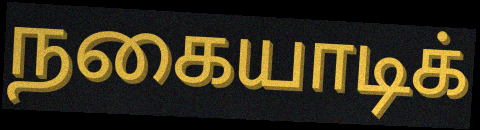
நகையாடிக்